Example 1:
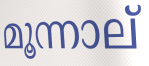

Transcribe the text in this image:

മൂന്നാല്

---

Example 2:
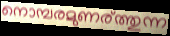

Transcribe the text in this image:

നൊമ്പരമുണര്ത്തുന്ന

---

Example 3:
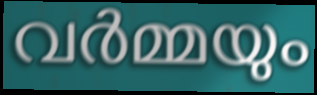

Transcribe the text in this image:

വർമ്മയും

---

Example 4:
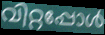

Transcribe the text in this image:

വിറ്റപ്പോൾ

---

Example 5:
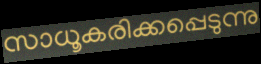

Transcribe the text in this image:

സാധൂകരിക്കപ്പെടുന്നു